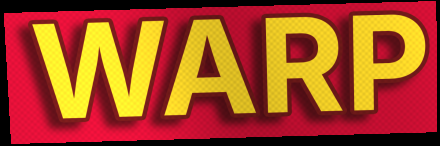
WARP